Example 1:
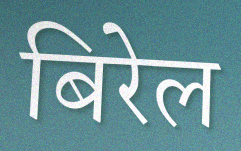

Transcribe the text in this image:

बिरेल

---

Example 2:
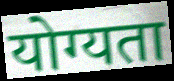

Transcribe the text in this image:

योग्‍यता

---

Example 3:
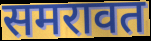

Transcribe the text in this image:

समरावत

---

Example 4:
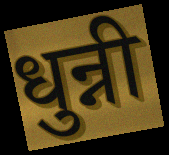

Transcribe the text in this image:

धुन्नी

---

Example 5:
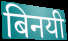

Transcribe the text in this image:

बिनयी